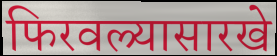
फिरवल्यासारखे